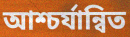
আশ্চর্যান্বিত